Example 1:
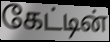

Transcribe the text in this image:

கேட்டின்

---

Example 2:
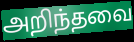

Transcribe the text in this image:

அறிந்தவை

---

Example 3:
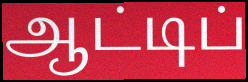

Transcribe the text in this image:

ஆட்டிப்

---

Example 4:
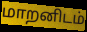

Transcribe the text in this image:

மாறனிடம்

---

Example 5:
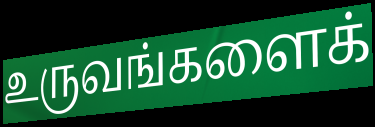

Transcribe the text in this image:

உருவங்களைக்